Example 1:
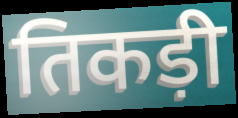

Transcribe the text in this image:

तिकड़ी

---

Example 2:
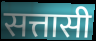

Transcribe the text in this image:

सत्तासी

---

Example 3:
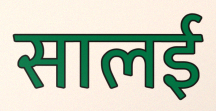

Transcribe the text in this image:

सालई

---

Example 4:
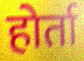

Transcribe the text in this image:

होर्ता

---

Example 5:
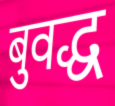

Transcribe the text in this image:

बुवद्ध